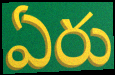
ఏరు